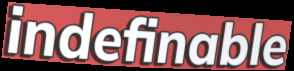
indefinable